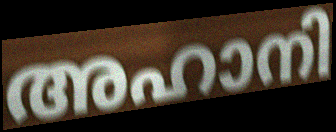
അഹാനി